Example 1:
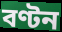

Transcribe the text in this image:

বণ্টন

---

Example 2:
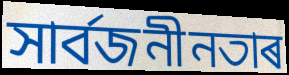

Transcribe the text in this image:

সাৰ্বজনীনতাৰ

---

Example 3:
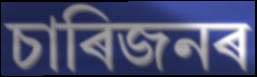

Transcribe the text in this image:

চাৰিজনৰ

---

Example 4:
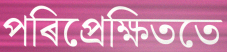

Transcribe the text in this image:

পৰিপ্ৰেক্ষিততে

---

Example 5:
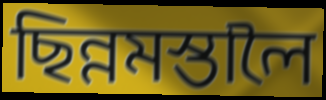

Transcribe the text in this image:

ছিন্নমস্তালৈ